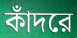
কাঁদরে